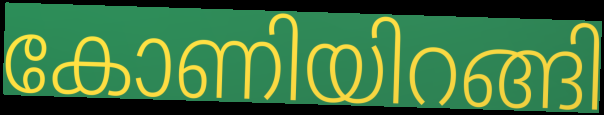
കോണിയിറങ്ങി